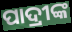
ପାଦ୍ରୀଙ୍କ